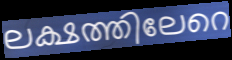
ലക്ഷത്തിലേറെ